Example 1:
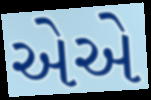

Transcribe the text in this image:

એએ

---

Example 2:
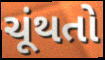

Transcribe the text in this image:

ચૂંથતો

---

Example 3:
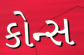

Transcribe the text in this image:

કોન્સ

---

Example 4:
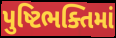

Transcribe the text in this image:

પુષ્ટિભક્તિમાં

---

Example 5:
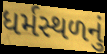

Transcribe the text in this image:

ધર્મસ્થળનું